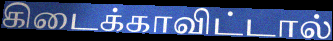
கிடைக்காவிட்டால்